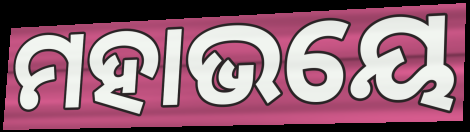
ମହାଭୟେ